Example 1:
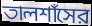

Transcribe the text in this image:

তালশাঁসের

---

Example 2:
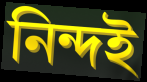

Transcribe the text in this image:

নিন্দই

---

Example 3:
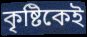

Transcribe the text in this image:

কৃষ্টিকেই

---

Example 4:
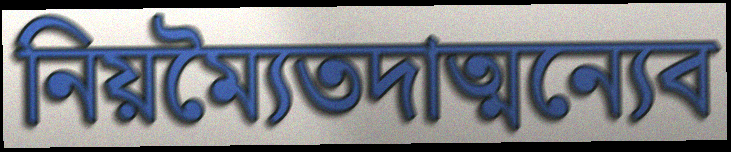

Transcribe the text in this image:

নিয়ম্যৈতদাত্মন্যেব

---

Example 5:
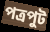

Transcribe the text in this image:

পত্রপুট